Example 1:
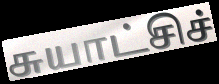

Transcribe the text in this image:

சுயாட்சிச்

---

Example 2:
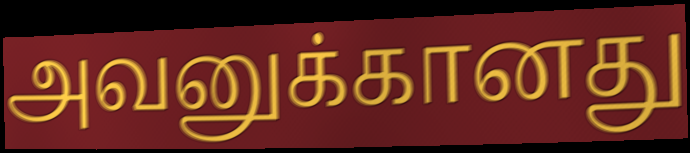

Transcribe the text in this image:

அவனுக்கானது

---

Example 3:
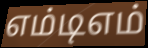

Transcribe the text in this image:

எம்டிஎம்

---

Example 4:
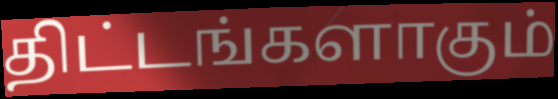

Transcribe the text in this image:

திட்டங்களாகும்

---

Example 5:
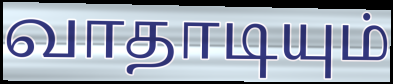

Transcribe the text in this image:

வாதாடியும்